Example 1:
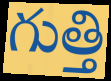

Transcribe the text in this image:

గుత్తి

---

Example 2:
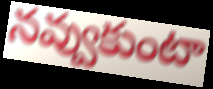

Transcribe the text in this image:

నవ్వుకుంటా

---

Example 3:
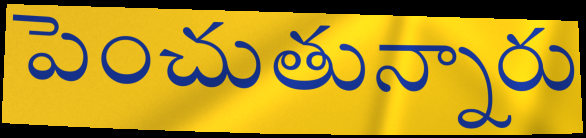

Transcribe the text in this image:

పెంచుతున్నారు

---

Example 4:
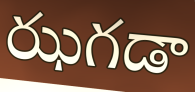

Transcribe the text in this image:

ఝగడా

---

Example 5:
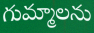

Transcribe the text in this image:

గుమ్మాలను